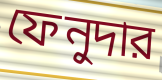
ফেনুদার